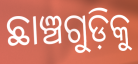
ଛାଞ୍ଚଗୁଡ଼ିକୁ